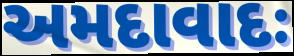
અમદાવાદઃ